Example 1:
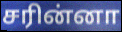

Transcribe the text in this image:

சரின்னா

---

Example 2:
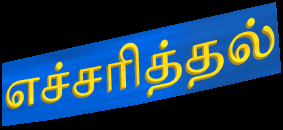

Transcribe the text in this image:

எச்சரித்தல்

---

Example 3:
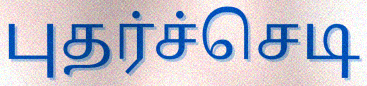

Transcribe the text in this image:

புதர்ச்செடி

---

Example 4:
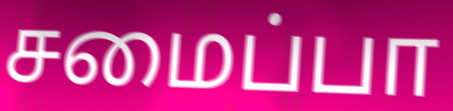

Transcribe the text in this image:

சமைப்பா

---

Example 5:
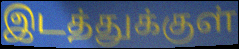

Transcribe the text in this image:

இடத்துக்குள்